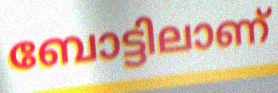
ബോട്ടിലാണ്